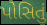
પોસિતું